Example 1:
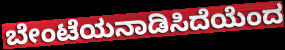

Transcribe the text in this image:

ಬೇಂಟೆಯನಾಡಿಸಿದೆಯೆಂದ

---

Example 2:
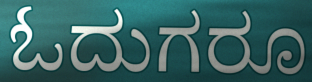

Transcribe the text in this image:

ಓದುಗರೂ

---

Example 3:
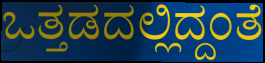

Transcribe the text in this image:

ಒತ್ತಡದಲ್ಲಿದ್ದಂತೆ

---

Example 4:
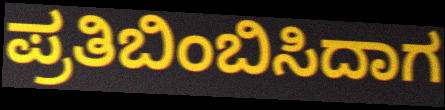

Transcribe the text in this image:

ಪ್ರತಿಬಿಂಬಿಸಿದಾಗ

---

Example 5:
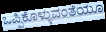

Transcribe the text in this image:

ಒಪ್ಪಿಕೊಳ್ಳುವಂತೆಯೂ